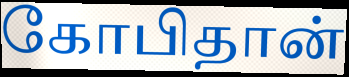
கோபிதான்